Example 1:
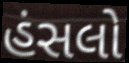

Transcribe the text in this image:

હંસલો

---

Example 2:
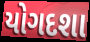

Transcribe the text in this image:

યોગદશા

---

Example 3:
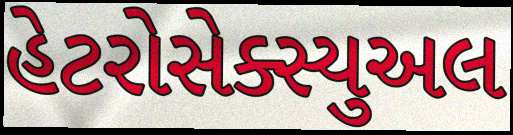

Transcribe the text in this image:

હેટરોસેક્સ્યુઅલ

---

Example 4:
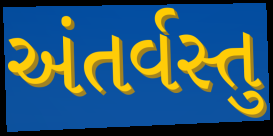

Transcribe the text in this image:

અંતર્વસ્તુ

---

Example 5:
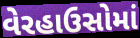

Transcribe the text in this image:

વેરહાઉસોમાં